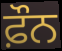
ਫ਼ੌਨ